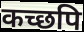
कच्छपि